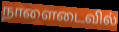
நாளைடைவில்